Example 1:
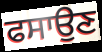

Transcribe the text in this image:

ਫਸਾਉਣ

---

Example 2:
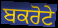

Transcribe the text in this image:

ਬਕਰੋਟੇ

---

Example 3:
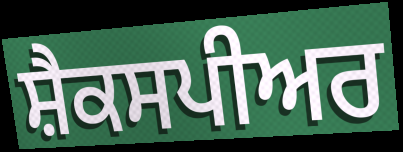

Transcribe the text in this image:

ਸ਼ੈਕਸਪੀਅਰ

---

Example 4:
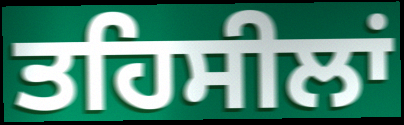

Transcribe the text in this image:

ਤਹਿਸੀਲਾਂ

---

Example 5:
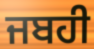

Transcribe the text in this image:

ਜਬਹੀ